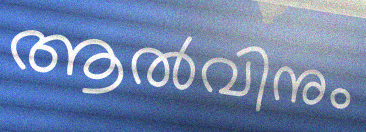
ആൽവിനും